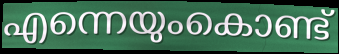
എന്നെയുംകൊണ്ട്